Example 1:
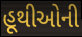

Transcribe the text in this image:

હૂથીઓની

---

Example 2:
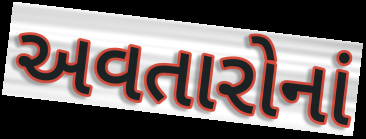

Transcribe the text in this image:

અવતારોનાં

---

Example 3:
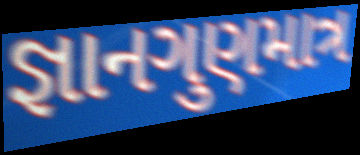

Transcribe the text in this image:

જ્ઞાનગુણમાત્ર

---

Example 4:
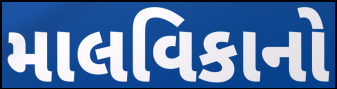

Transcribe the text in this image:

માલવિકાનો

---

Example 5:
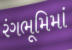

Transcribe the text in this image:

રંગભૂમિમાં